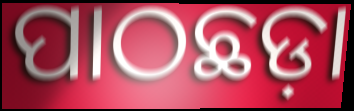
ପାଠଛଡ଼ା